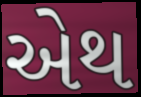
એથ